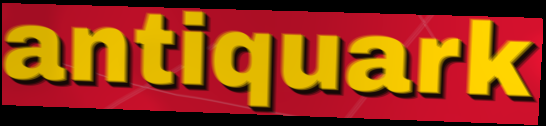
antiquark